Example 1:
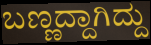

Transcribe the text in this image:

ಬಣ್ಣದ್ದಾಗಿದ್ದು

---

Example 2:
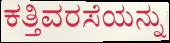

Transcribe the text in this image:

ಕತ್ತಿವರಸೆಯನ್ನು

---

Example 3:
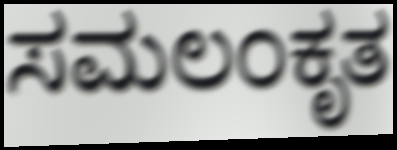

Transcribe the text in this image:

ಸಮಲಂಕೃತ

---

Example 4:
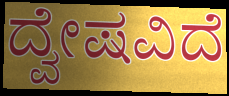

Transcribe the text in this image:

ದ್ವೇಷವಿದೆ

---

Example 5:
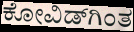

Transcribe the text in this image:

ಕೋವಿಡ್‌ಗಿಂತ